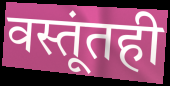
वस्तूंतही